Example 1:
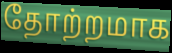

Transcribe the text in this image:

தோற்றமாக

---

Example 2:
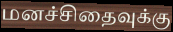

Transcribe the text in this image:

மனச்சிதைவுக்கு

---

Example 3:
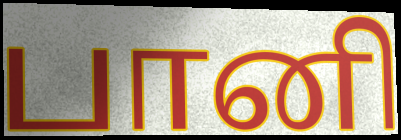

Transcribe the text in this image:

பானி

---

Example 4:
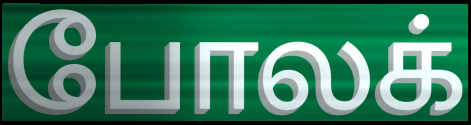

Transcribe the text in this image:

போலக்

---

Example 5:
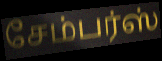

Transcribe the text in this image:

சேம்பர்ஸ்